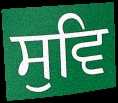
ਸੁਵਿ